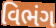
વિભંગ